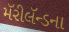
મૅરીલૅન્ડના